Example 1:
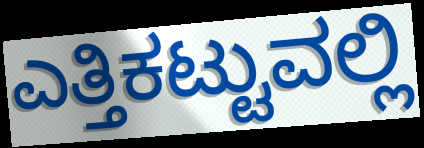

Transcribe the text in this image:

ಎತ್ತಿಕಟ್ಟುವಲ್ಲಿ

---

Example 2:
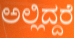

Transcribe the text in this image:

ಅಲ್ಲಿದ್ದರೆ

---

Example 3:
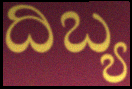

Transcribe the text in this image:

ದಿಬ್ಯ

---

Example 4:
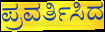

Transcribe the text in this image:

ಪ್ರವರ್ತಿಸಿದ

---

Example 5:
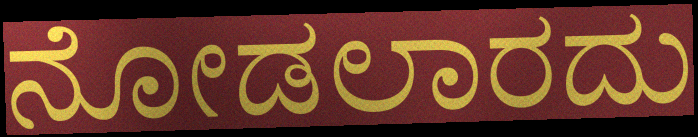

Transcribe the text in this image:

ನೋಡಲಾರದು